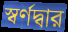
স্বর্ণদ্বার